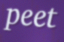
peet